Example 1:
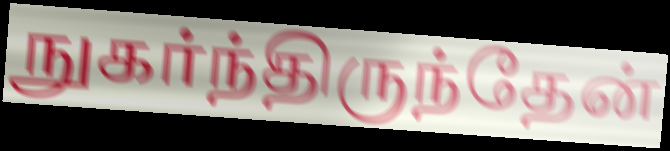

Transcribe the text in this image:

நுகர்ந்திருந்தேன்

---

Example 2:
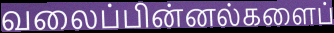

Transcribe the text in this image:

வலைப்பின்னல்களைப்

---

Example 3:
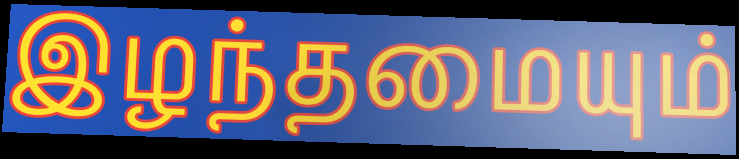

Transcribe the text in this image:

இழந்தமையும்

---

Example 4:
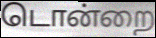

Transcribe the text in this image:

டொன்றை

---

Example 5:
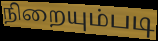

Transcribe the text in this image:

நிறையும்படி